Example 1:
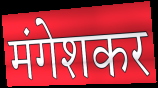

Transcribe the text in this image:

मंगेशकर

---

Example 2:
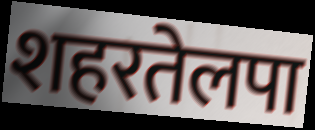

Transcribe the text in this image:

शहरतेलपा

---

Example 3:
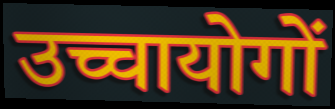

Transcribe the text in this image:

उच्‍चायोगों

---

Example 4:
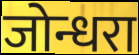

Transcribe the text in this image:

जोन्धरा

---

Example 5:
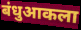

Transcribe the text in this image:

बंधुआकला